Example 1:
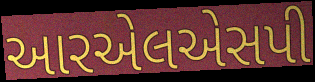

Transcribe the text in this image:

આરએલએસપી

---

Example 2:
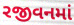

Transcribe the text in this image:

રજીવનમાં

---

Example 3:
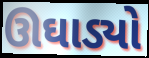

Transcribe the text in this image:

ઊઘાડ્યો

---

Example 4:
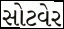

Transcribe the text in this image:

સોટવેર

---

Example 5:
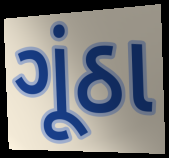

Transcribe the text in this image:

ગૂંઠા